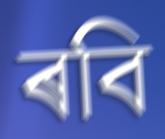
ৰবি